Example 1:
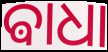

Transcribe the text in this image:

ଵାଧା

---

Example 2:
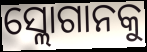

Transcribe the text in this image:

ସ୍ଲୋଗାନକୁ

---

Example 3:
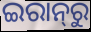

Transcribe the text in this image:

ଇରାନ୍‌ରୁ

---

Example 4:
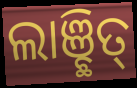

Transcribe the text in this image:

ଲାଞ୍ଛିତ୍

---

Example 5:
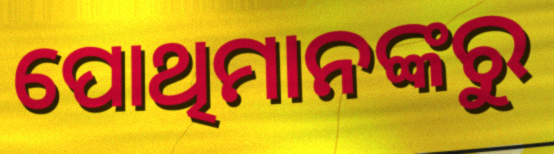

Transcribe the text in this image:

ପୋଥିମାନଙ୍କରୁ